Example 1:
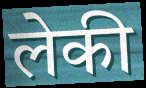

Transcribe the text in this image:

लेकी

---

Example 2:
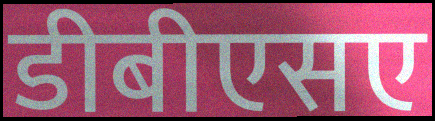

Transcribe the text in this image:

डीबीएसए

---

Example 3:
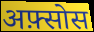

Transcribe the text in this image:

अफ़्सोस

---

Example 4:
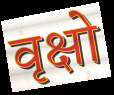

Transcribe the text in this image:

वृक्षो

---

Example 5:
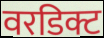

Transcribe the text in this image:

वरडिक्ट